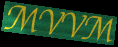
MVVM